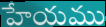
హేయము